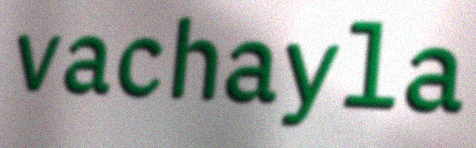
vachayla